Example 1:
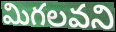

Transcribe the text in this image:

మిగలవని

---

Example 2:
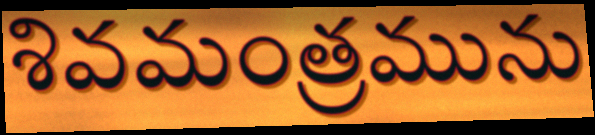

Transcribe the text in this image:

శివమంత్రమును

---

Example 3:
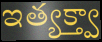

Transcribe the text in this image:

ఇత్యక్త్వా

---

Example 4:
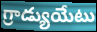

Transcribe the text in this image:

గ్రాడ్యుయేటు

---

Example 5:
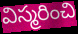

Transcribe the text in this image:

విస్మరించి